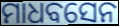
ମାଧବସେନ